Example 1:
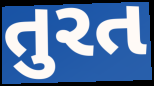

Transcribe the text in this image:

તુરત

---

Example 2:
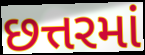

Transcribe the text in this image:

છત્તરમાં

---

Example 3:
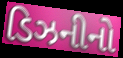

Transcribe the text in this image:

ડિઝનીનો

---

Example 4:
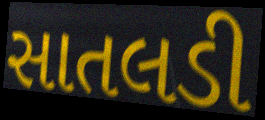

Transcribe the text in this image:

સાતલડી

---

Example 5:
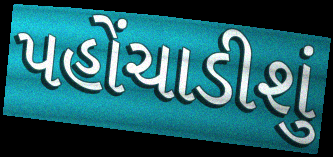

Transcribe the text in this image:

પહોંચાડીશું